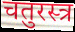
चतुरस्त्र